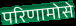
परिणामोसे